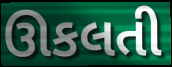
ઊકલતી